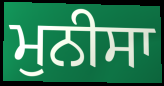
ਮੁਨੀਸਾ